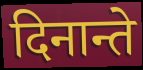
दिनान्ते